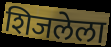
शिजलेला